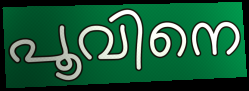
പൂവിനെ